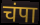
चंपा